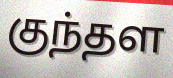
குந்தள